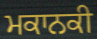
ਮਕਾਨਕੀ